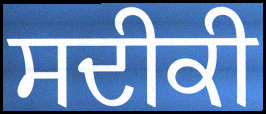
ਸਦੀਕੀ